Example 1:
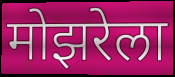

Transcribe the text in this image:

मोझरेला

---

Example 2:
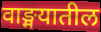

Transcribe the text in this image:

वाङ्मयातील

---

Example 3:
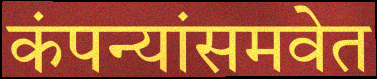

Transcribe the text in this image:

कंपन्यांसमवेत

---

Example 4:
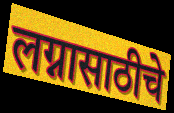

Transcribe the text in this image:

लग्नासाठीचे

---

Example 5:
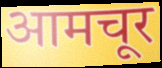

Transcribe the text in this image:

आमचूर